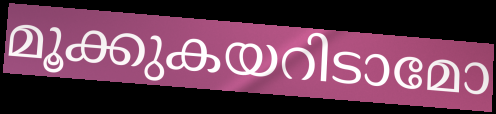
മൂക്കുകയറിടാമോ